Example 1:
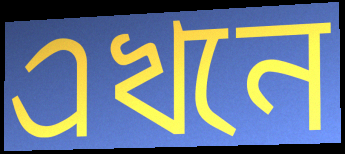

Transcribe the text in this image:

এখনে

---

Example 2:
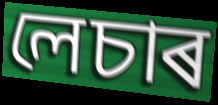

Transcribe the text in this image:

লেচাৰ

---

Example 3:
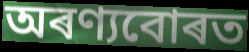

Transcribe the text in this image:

অৰণ্যবোৰত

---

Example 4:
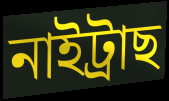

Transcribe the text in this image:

নাইট্ৰাছ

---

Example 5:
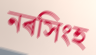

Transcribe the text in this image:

নৰসিংহ